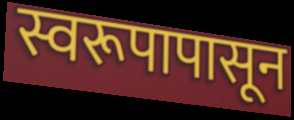
स्वरूपापासून